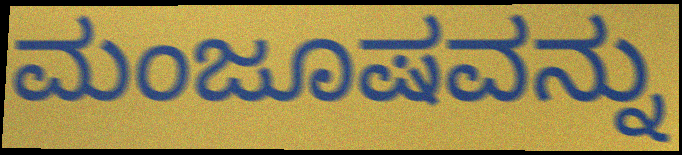
ಮಂಜೂಷವನ್ನು